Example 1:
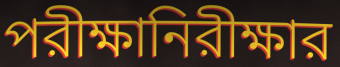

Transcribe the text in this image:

পরীক্ষানিরীক্ষার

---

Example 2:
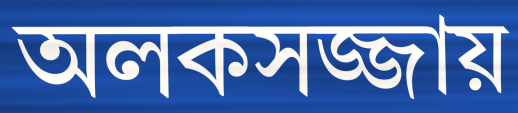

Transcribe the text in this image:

অলকসজ্জায়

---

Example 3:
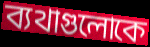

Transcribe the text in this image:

ব্যথাগুলোকে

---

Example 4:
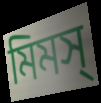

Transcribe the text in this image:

মিমস্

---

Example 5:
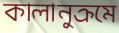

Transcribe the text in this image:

কালানুক্রমে